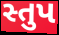
સ્તુપ